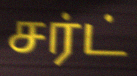
சர்ட்